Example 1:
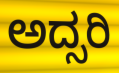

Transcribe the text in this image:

ಅದ್ಸರಿ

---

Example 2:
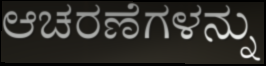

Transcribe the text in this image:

ಆಚರಣೆಗಳನ್ನು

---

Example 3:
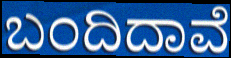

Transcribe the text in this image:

ಬಂದಿದಾವೆ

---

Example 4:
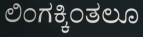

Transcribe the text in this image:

ಲಿಂಗಕ್ಕಿಂತಲೂ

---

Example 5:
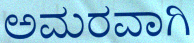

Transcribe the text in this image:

ಅಮರವಾಗಿ